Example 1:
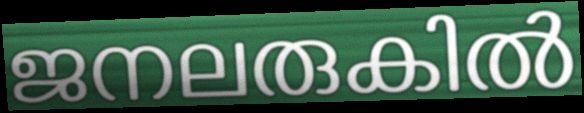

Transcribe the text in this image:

ജനലരുകിൽ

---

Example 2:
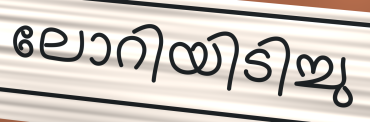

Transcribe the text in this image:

ലോറിയിടിച്ചു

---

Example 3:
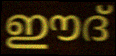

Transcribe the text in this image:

ഈദ്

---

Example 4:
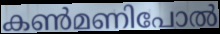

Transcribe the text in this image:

കൺമണിപോൽ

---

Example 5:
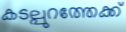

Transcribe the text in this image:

കടല്പുറത്തേക്ക്